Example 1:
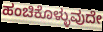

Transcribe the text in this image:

ಹಂಚಿಕೊಳ್ಳುವುದೇ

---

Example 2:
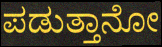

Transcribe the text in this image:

ಪಡುತ್ತಾನೋ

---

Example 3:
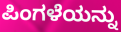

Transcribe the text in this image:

ಪಿಂಗಳೆಯನ್ನು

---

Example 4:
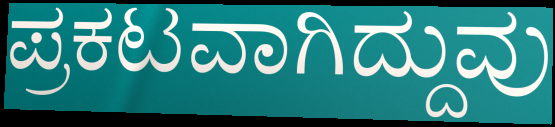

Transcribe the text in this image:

ಪ್ರಕಟವಾಗಿದ್ದುವು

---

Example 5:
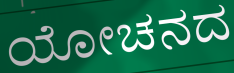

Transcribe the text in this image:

ಯೋಚನದ